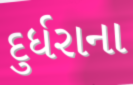
દુર્ધરાના